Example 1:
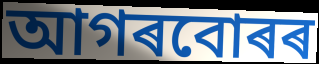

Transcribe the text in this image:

আগৰবোৰৰ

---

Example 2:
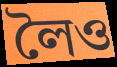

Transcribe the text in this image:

লৈও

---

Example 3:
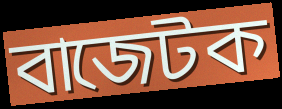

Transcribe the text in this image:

বাজেটক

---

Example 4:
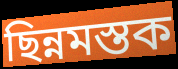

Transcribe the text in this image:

ছিন্নমস্তক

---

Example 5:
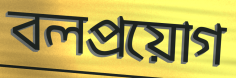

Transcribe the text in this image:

বলপ্ৰয়োগ